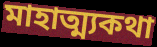
মাহাত্ম্যকথা